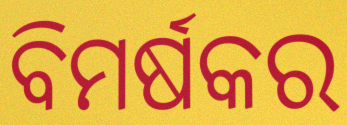
ବିମର୍ଷକର